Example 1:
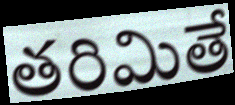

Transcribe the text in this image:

తరిమితే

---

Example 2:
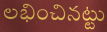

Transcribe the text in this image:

లభించినట్టు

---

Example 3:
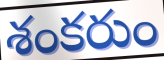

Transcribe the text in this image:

శంకరుం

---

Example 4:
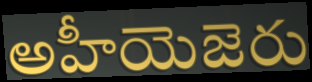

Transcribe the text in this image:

అహీయెజెరు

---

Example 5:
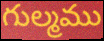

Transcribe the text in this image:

గుల్మము